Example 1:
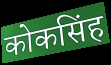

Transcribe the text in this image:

कोकसिंह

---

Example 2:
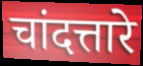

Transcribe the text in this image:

चांदत्तारे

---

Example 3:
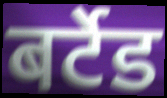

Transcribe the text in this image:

बर्टेड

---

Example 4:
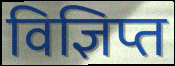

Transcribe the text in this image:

विज्ञिप्त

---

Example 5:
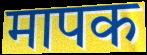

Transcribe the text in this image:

मापक